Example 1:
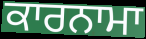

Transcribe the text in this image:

ਕਾਰਨਾਮਾ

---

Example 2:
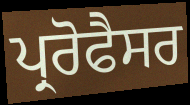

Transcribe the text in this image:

ਪ੍ਰਰੋਫੈਸਰ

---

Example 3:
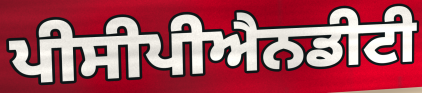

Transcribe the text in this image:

ਪੀਸੀਪੀਐਨਡੀਟੀ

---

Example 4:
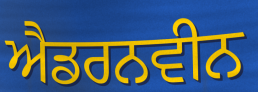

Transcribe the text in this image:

ਐਡਰਨਵੀਨ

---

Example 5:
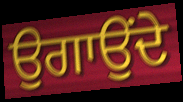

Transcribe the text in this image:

ਉਗਾਉਂਦੇ